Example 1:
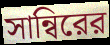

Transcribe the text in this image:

সান্বিরের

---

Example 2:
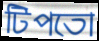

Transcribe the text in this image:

টিপতো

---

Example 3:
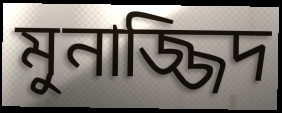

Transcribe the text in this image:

মুনাজ্জিদ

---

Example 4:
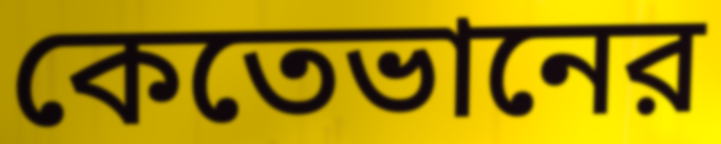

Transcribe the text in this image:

কেতেভানের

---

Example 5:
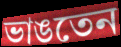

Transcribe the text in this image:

ভাঙতেন